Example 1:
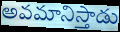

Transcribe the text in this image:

అవమానిస్తాడు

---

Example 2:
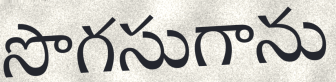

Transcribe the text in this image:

సొగసుగాను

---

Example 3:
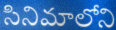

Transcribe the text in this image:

సినిమాలోని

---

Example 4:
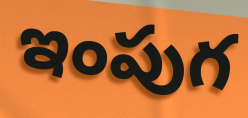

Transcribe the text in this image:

ఇంపుగ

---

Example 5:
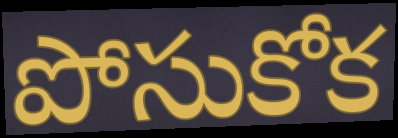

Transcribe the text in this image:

పోసుకోక